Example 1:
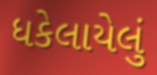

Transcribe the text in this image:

ધકેલાયેલું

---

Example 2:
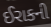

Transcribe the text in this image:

ઈરાકની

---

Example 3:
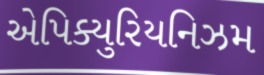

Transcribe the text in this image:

એપિક્યુરિયનિઝમ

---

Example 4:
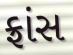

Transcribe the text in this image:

ફ્રાંસ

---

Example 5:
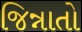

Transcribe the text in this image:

જિન્નાતો